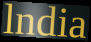
lndia